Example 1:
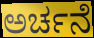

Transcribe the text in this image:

ಅರ್ಚನೆ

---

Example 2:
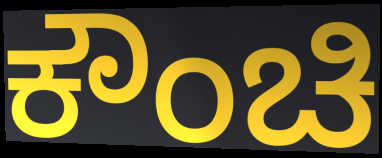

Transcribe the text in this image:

ಕೌಂಚಿ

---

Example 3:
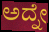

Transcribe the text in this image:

ಅದ್ನೇ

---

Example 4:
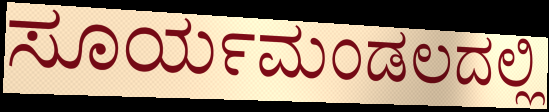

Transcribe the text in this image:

ಸೂರ್ಯಮಂಡಲದಲ್ಲಿ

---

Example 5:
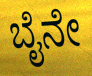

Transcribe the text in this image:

ಬೈನೇ